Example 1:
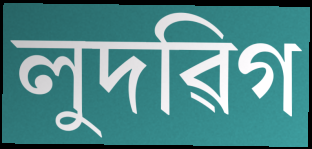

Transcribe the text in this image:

লুদৱিগ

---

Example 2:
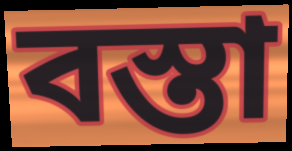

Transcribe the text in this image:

বস্তা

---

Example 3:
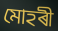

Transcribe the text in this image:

মোহৰী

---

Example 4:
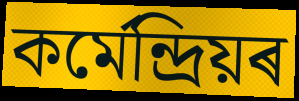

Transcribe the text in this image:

কৰ্মেন্দ্ৰিয়ৰ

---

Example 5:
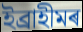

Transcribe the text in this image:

ইব্ৰাহীমৰ